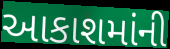
આકાશમાંની